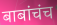
बाबांचंच